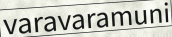
varavaramuni